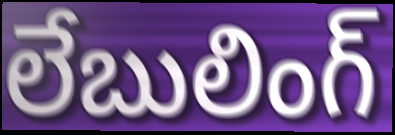
లేబులింగ్